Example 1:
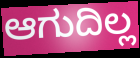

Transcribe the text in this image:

ಆಗುದಿಲ್ಲ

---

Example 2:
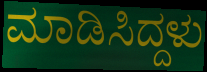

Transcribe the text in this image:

ಮಾಡಿಸಿದ್ದಳು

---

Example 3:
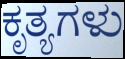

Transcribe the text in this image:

ಕೃತ್ಯಗಳು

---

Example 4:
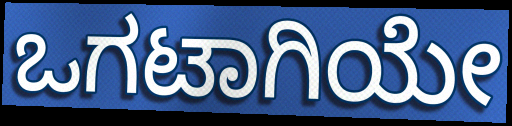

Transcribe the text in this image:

ಒಗಟಾಗಿಯೇ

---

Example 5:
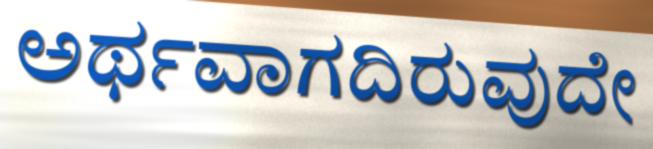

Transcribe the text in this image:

ಅರ್ಥವಾಗದಿರುವುದೇ